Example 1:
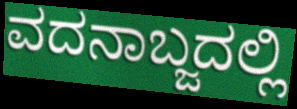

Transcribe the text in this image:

ವದನಾಬ್ಜದಲ್ಲಿ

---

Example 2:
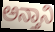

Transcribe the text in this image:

ಅನ್ತಾನಿ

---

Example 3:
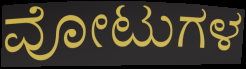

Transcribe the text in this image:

ವೋಟುಗಳ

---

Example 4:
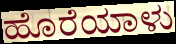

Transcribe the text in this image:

ಹೊರೆಯಾಳು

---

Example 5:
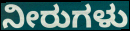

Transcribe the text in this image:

ನೀರುಗಳು